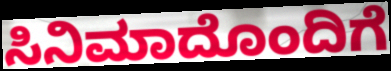
ಸಿನಿಮಾದೊಂದಿಗೆ